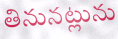
తినునట్లును